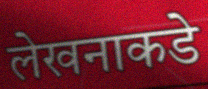
लेखनाकडे